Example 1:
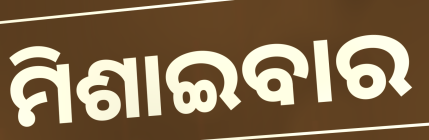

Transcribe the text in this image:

ମିଶାଇବାର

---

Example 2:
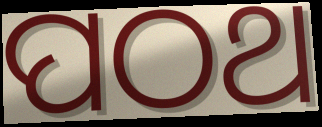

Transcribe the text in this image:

ପଠଥ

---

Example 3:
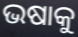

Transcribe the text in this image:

ଭଷାକୁ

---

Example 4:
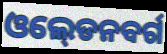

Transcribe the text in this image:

ଓଲ୍‍ଡେନବର୍ଗ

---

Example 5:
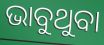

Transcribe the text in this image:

ଭାବୁଥୁବା